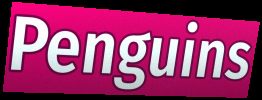
Penguins